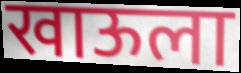
खाऊला